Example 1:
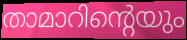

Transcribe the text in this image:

താമാറിന്റെയും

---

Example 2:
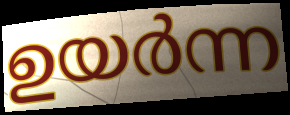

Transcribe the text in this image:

ഉയർന്ന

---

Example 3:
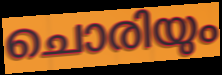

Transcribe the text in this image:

ചൊരിയും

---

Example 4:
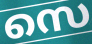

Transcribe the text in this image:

സെ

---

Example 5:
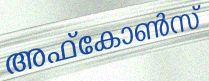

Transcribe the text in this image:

അഫ്കോൺസ്